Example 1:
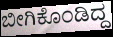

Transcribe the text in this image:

ಬೀಗಿಕೊಂಡಿದ್ದ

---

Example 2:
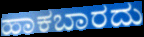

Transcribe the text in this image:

ಹಾಕಬಾರದು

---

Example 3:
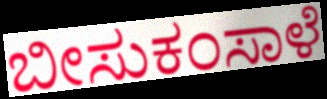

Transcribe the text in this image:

ಬೀಸುಕಂಸಾಳೆ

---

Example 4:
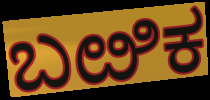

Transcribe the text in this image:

ಬೞಿಕ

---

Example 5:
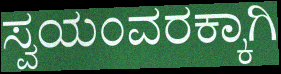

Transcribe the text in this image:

ಸ್ವಯಂವರಕ್ಕಾಗಿ